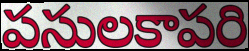
పసులకాపరి